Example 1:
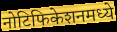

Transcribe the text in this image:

नोटिफिकेशनमध्ये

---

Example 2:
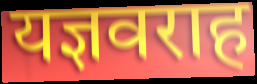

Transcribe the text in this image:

यज्ञवराह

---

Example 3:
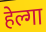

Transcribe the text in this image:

हेल्गा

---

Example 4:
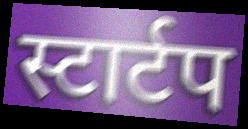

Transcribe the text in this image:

स्टार्टप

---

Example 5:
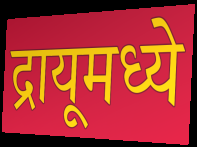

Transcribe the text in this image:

द्रायूमध्ये